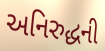
અનિરુદ્ધની